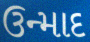
ઉન્માદ